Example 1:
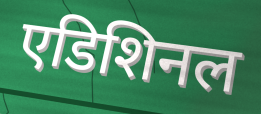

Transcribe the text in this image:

एडिशिनल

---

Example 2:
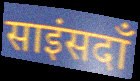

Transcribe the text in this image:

साइंसदाँ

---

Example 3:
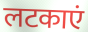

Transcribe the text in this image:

लटकाएं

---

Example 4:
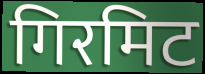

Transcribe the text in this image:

गिरमिट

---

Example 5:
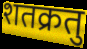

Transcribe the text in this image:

शतक्रतु